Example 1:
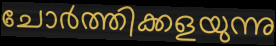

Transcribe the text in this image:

ചോർത്തിക്കളയുന്നു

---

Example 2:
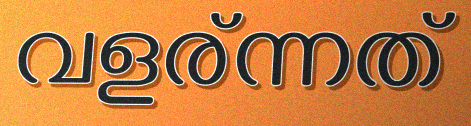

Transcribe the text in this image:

വളര്ന്നത്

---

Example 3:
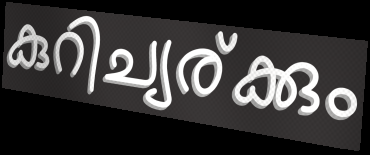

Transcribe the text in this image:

കുറിച്യര്ക്കും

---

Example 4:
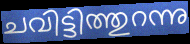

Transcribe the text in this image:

ചവിട്ടിത്തുറന്നു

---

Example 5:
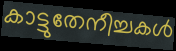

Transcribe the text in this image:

കാട്ടുതേനീച്ചകൾ